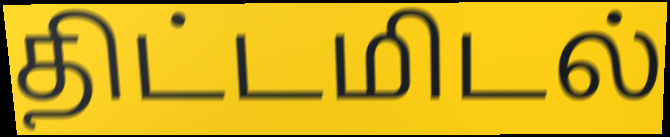
திட்டமிடல்